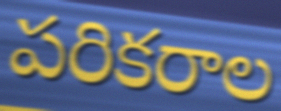
పరికరాల